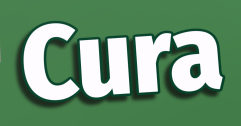
Cura